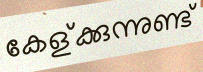
കേള്ക്കുന്നുണ്ട്